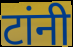
टांनी